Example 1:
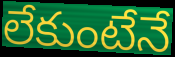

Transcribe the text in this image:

లేకుంటేనే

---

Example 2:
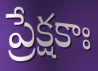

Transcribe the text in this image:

ప్రేక్షకాః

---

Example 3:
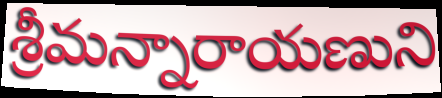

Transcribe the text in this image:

శ్రీమన్నారాయణుని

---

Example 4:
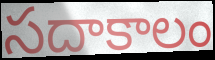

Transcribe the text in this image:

సదాకాలం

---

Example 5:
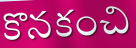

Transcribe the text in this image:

కొనకంచి